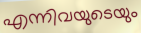
എന്നിവയുടെയും